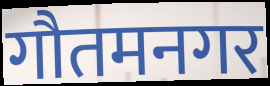
गौतमनगर